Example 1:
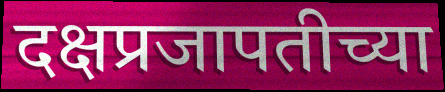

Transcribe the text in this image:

दक्षप्रजापतीच्या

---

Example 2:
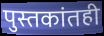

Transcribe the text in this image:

पुस्तकांतही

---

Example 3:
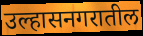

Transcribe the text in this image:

उल्हासनगरातील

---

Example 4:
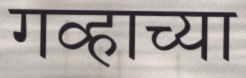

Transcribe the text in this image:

गव्हाच्या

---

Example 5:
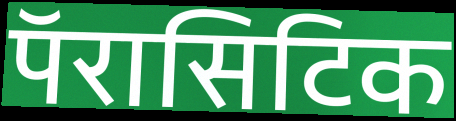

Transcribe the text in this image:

पॅरासिटिक